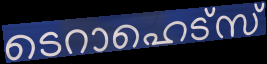
ടെറാഹെട്സ്